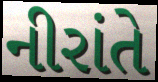
નીરાંતે